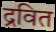
द्रवित